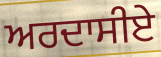
ਅਰਦਾਸੀਏ